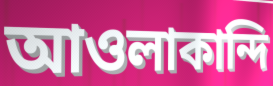
আওলাকান্দি